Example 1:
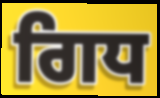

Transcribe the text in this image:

ਗਿਧ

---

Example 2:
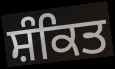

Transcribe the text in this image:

ਸ਼ੰਕਿਤ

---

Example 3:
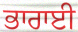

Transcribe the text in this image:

ਭਾਰਾਈ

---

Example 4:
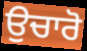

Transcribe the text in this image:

ਉਚਾਰੋ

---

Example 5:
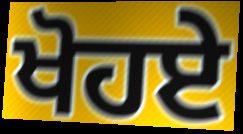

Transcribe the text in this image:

ਖੋਹਏ